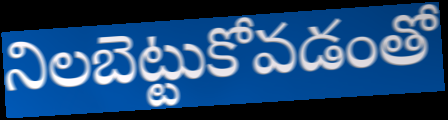
నిలబెట్టుకోవడంతో